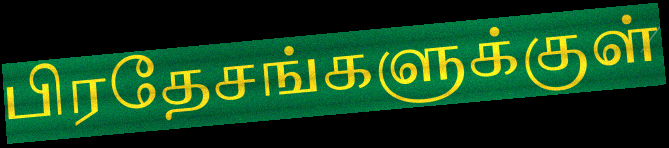
பிரதேசங்களுக்குள்